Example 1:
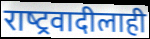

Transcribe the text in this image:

राष्ट्रवादीलाही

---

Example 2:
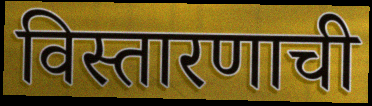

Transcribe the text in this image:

विस्तारणाची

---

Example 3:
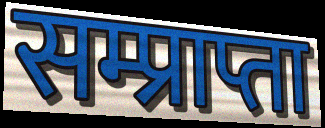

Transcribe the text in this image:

सम्प्राप्ता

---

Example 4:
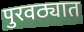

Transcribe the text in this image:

पुरवठ्यात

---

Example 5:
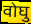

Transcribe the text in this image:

वोघु